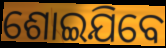
ଶୋଇଯିବେ